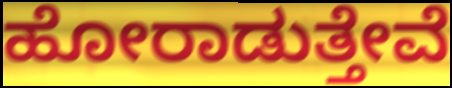
ಹೋರಾಡುತ್ತೇವೆ